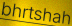
bhrtshah